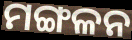
ମଙ୍ଗଳନ